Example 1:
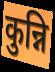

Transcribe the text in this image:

कुन्नि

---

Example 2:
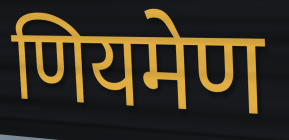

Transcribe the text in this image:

णियमेण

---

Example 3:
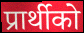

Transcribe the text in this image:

प्रार्थीको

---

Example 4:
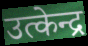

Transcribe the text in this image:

उत्केन्द्र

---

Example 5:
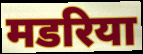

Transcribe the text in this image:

मडरिया